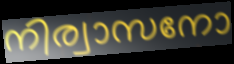
നിര്വാസനോ